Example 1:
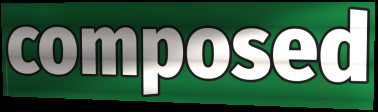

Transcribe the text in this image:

composed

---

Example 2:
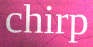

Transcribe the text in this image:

chirp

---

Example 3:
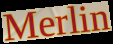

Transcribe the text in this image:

Merlin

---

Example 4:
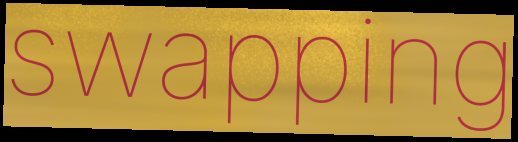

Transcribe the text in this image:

swapping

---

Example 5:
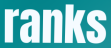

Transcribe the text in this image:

ranks